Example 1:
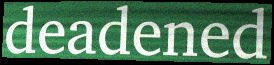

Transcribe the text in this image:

deadened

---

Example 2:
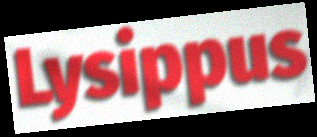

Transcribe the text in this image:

Lysippus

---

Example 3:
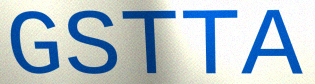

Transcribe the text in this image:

GSTTA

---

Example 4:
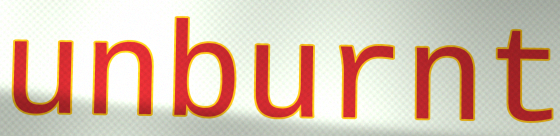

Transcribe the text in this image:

unburnt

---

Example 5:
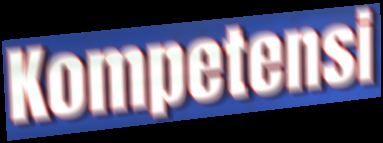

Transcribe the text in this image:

Kompetensi